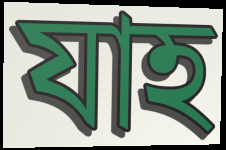
যাহ